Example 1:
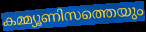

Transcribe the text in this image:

കമ്മ്യൂണിസത്തെയും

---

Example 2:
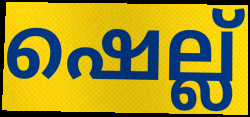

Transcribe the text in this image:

ഷെല്ല്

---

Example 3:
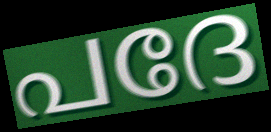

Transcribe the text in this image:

പദേ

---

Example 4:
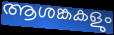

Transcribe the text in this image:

ആശങ്കകളും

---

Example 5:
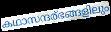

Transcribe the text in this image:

കഥാസന്ദര്ഭങ്ങളിലും